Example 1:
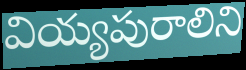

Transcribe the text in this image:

వియ్యపురాలిని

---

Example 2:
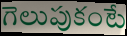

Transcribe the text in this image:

గెలుపుకంటే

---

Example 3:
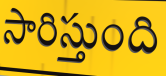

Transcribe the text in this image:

సారిస్తుంది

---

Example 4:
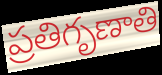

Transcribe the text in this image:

ప్రతిగృణాతి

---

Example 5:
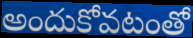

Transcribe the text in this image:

అందుకోవటంతో